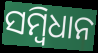
ସମ୍ୱିଧାନ